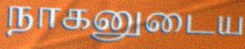
நாகனுடைய